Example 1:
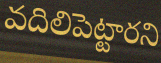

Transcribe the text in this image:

వదిలిపెట్టారని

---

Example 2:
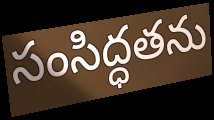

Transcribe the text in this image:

సంసిద్ధతను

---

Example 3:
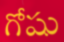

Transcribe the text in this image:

గోషు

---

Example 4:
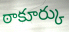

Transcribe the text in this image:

ఠాకూర్కు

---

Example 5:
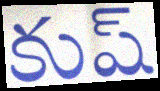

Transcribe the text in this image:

కుష్